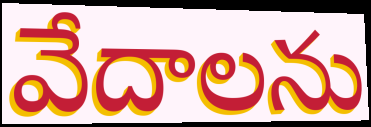
వేదాలను